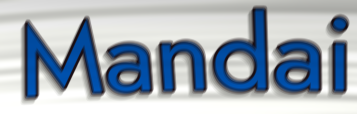
Mandai